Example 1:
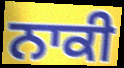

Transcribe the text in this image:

ਨਾਕੀ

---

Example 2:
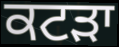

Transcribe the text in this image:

ਕਟੜਾ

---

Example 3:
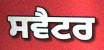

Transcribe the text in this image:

ਸਵੈਟਰ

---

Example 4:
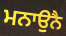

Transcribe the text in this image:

ਮਨਾਉਨੈ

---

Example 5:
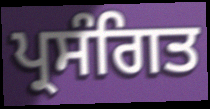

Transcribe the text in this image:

ਪ੍ਰਸੰਗਿਤ